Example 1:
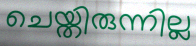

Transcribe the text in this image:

ചെയ്തിരുന്നില്ല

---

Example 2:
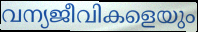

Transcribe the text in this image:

വന്യജീവികളെയും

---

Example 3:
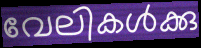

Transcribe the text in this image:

വേലികൾക്കു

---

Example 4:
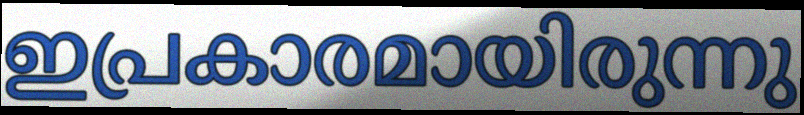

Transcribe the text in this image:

ഇപ്രകാരമായിരുന്നു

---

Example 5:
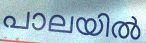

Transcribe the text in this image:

പാലയിൽ